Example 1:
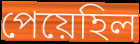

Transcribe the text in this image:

পেয়েহিল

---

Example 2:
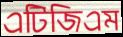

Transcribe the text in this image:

এটিজিএম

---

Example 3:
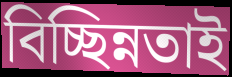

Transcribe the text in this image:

বিচ্ছিন্নতাই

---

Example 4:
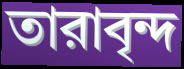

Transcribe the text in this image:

তারাবৃন্দ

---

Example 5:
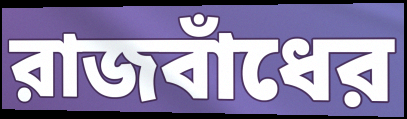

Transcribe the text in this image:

রাজবাঁধের